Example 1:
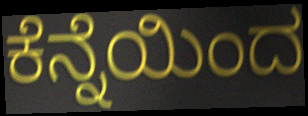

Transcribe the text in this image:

ಕೆನ್ನೆಯಿಂದ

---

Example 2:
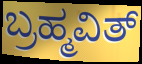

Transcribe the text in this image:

ಬ್ರಹ್ಮವಿತ್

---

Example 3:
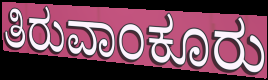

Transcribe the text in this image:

ತಿರುವಾಂಕೂರು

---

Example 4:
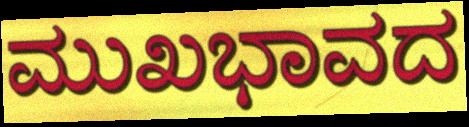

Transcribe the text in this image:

ಮುಖಭಾವದ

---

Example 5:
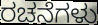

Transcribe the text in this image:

ರಚನೆಗಳು